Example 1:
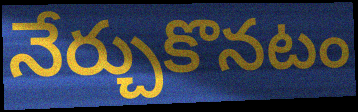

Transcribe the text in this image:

నేర్చుకొనటం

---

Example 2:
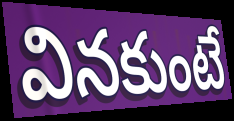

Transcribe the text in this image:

వినకుంటే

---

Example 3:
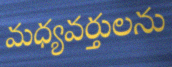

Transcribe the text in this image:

మధ్యవర్తులను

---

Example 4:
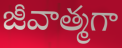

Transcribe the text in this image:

జీవాత్మగా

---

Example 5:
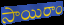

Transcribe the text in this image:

సాయిరాం